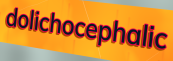
dolichocephalic